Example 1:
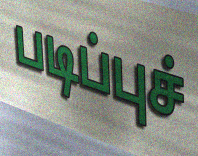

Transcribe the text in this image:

படிப்புச்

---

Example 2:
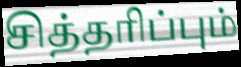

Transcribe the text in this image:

சித்தரிப்பும்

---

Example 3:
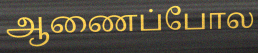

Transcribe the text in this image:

ஆணைப்போல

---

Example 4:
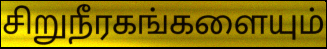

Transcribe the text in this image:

சிறுநீரகங்களையும்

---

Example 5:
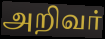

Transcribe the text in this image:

அறிவர்